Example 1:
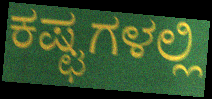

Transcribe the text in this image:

ಕಷ್ಟಗಳಲ್ಲಿ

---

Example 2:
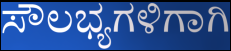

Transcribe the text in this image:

ಸೌಲಭ್ಯಗಳಿಗಾಗಿ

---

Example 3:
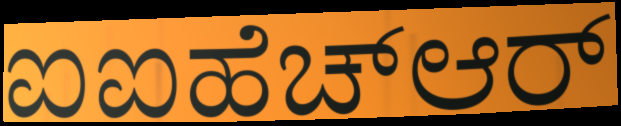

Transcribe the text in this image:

ಐಐಹೆಚ್ಆರ್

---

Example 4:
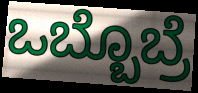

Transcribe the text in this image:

ಒಬ್ಬೊಬ್ರೆ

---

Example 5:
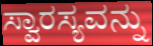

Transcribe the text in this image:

ಸ್ವಾರಸ್ಯವನ್ನು